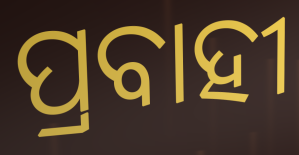
ପ୍ରବାହୀ